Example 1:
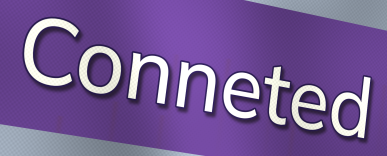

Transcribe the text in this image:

Conneted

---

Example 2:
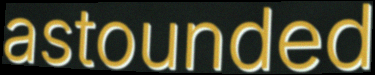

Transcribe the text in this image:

astounded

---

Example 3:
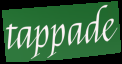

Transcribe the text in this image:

tappade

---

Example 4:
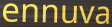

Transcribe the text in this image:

ennuva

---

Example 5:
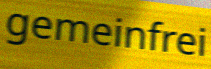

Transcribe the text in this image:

gemeinfrei